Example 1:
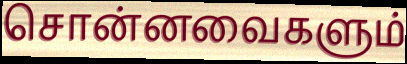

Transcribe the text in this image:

சொன்னவைகளும்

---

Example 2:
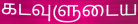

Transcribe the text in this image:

கடவுளுடைய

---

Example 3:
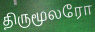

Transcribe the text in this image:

திருமூலரோ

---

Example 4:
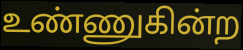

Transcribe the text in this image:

உண்ணுகின்ற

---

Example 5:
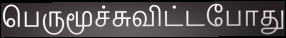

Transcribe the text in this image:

பெருமூச்சுவிட்டபோது